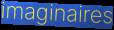
imaginaires